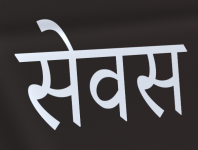
सेवस